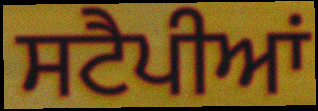
ਸਟੈਪੀਆਂ